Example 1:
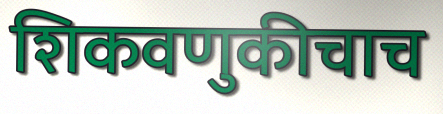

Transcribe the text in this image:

शिकवणुकीचाच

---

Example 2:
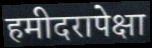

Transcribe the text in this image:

हमीदरापेक्षा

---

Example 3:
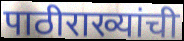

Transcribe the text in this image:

पाठीराख्यांची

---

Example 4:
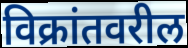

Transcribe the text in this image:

विक्रांतवरील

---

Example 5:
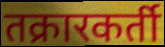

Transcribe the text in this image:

तक्रारकर्ती